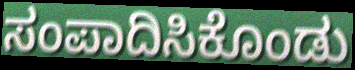
ಸಂಪಾದಿಸಿಕೊಂಡು